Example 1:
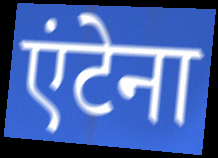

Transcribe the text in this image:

एंटेना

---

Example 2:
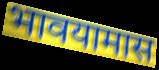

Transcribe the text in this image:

भावयामास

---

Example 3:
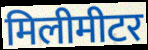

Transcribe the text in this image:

मिलीमीटर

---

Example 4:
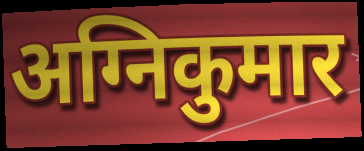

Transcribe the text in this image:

अग्निकुमार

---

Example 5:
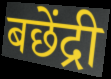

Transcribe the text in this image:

बछेंद्री